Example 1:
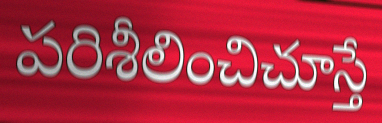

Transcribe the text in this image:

పరిశీలించిచూస్తే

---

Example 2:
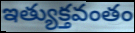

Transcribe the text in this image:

ఇత్యుక్తవంతం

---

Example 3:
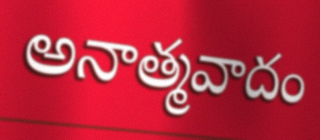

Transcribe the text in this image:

అనాత్మవాదం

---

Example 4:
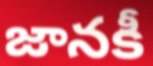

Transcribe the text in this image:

జానకీ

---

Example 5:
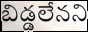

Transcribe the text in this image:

బిడ్డలేనని